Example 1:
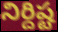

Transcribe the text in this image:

నిర్దిష్ట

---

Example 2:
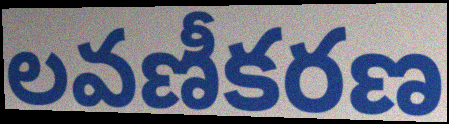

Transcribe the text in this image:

లవణీకరణ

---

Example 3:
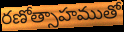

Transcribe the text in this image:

రణోత్సాహముతో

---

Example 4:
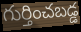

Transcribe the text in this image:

గుర్తించబడ్డ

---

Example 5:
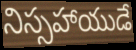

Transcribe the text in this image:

నిస్సహాయుడే